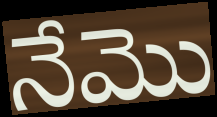
నేమొ